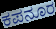
ಕಪನೂರ